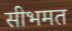
सीभमत